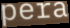
pera